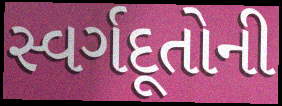
સ્વર્ગદૂતોની